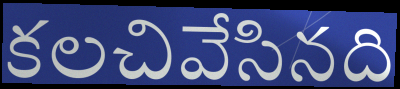
కలచివేసినది